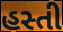
હસ્તી